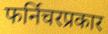
फर्निचरप्रकार